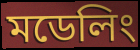
মডেলিং